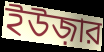
ইউজ়ার